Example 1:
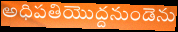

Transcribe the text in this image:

అధిపతియొద్దనుండెను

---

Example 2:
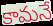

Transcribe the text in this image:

కామనే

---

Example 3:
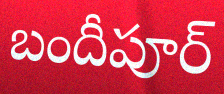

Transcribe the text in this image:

బందీపూర్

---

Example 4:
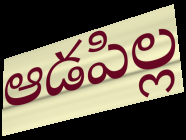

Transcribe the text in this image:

ఆడపిల్ల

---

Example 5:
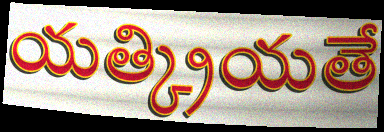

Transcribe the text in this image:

యత్క్రియతే